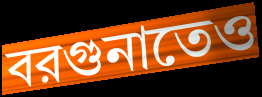
বরগুনাতেও